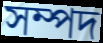
সম্পদ